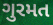
ગુરમત